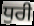
ਧੁਰੀ